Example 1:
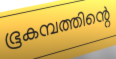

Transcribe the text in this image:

ഭൂകമ്പത്തിന്റെ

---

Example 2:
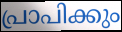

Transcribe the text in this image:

പ്രാപിക്കും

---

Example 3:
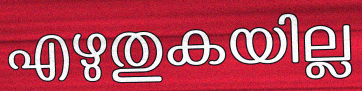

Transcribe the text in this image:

എഴുതുകയില്ല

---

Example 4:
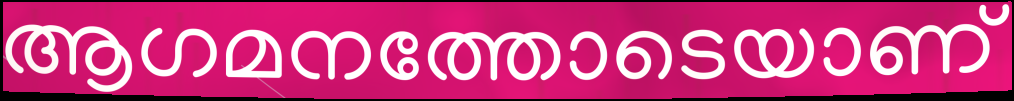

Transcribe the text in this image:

ആഗമനത്തോടെയാണ്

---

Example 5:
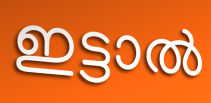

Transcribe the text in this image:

ഇട്ടാൽ